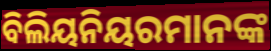
ବିଲିୟନିୟରମାନଙ୍କ